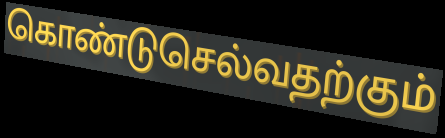
கொண்டுசெல்வதற்கும்